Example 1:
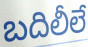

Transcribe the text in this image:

బదిలీలే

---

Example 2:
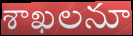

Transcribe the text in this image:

శాఖలనూ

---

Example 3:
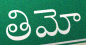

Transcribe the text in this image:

తిమో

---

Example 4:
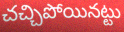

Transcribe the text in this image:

చచ్చిపోయినట్టు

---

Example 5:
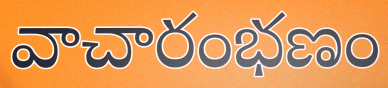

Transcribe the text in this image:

వాచారంభణం